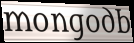
mongodb